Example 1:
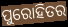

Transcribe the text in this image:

ପୁରୋହିତର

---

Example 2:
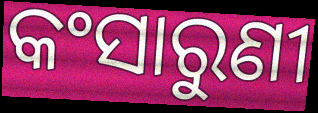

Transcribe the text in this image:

କଂସାରୁଣୀ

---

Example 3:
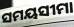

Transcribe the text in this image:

ସମୟସୀମା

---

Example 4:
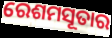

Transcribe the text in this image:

ରେଶମସୂତାର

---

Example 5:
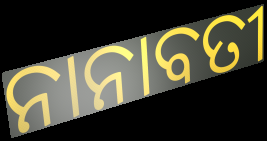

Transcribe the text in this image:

ନାନାବତୀ